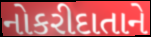
નોકરીદાતાને